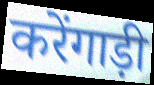
करेंगाड़ी